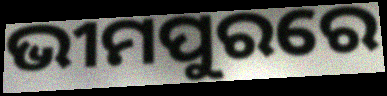
ଭୀମପୁରରେ